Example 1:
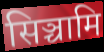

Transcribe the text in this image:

सिञ्चामि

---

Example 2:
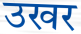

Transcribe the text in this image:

उखर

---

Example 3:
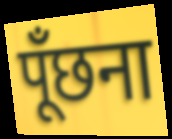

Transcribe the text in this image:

पूँछना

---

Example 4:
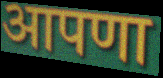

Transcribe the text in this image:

आपणा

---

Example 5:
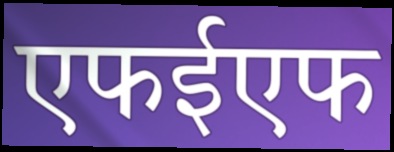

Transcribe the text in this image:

एफईएफ